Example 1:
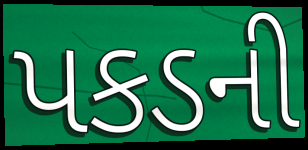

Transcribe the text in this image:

પકડની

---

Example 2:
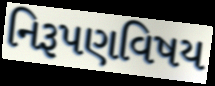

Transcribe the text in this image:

નિરૂપણવિષય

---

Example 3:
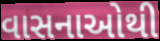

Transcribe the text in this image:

વાસનાઓથી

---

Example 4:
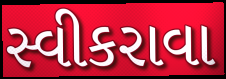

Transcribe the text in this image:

સ્વીકરાવા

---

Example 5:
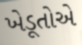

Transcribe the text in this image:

ખેડૂતોએ